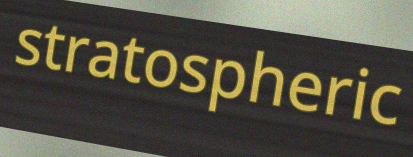
stratospheric